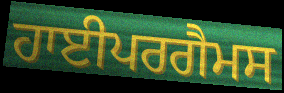
ਹਾਈਪਰਗੈਮਸ